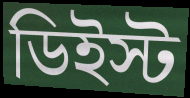
ডিইস্ট